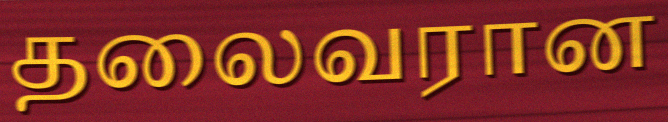
தலைவரான